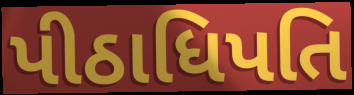
પીઠાધિપતિ